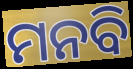
ମନବି